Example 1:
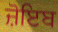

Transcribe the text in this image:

ਜ਼ੋਇਬ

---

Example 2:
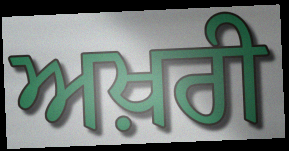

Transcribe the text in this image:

ਅਖ਼ਰੀ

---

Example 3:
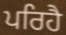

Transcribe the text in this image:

ਪਰਿਹੈ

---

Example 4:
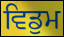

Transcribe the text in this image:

ਵਿਡੁਮ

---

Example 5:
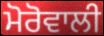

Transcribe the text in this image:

ਮੋਰੋਵਾਲੀ